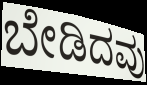
ಬೇಡಿದವು